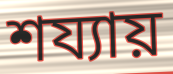
শয্যায়